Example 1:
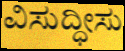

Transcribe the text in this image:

ವಿಸುದ್ಧೀಸು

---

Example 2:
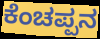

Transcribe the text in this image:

ಕೆಂಚಪ್ಪನ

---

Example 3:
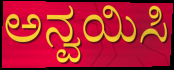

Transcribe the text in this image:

ಅನ್ವಯಿಸಿ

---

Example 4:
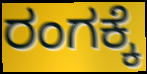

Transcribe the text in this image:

ರಂಗಕ್ಕೆ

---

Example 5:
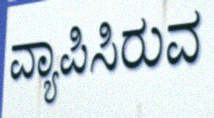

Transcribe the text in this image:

ವ್ಯಾಪಿಸಿರುವ